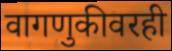
वागणुकीवरही